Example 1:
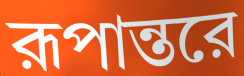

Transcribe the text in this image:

রূপান্তরে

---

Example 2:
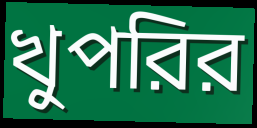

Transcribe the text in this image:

খুপরির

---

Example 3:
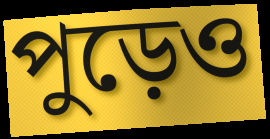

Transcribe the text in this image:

পুড়েও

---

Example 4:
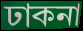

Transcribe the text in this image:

ঢাকনা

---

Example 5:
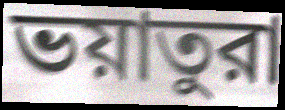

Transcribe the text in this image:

ভয়াতুরা